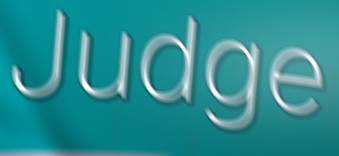
Judge